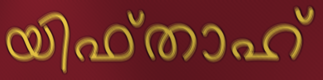
യിഫ്താഹ്